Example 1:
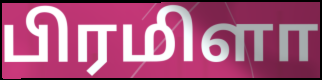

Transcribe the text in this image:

பிரமிளா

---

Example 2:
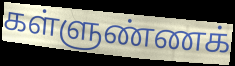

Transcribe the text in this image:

கள்ளுண்ணக்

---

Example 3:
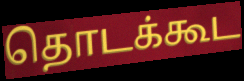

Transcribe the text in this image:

தொடக்கூட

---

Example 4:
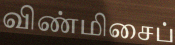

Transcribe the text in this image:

விண்மிசைப்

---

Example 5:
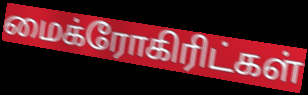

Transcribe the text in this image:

மைக்ரோகிரிட்கள்